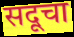
सदूचा